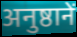
अनुष्ठानें